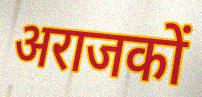
अराजकों